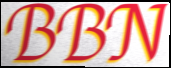
BBN